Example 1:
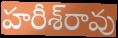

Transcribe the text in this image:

హరీశ్‌రావు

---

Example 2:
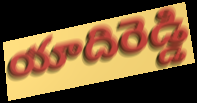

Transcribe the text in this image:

యాదిరెడ్డి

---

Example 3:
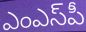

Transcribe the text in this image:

ఎంఎస్‌పీ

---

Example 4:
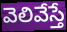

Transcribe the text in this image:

వెలివేస్తే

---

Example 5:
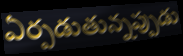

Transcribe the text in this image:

ఏర్పడుతున్నప్పుడు